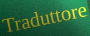
Traduttore